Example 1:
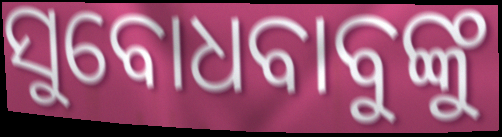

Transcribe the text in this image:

ସୁବୋଧବାବୁଙ୍କୁ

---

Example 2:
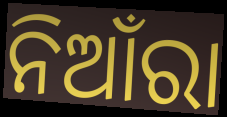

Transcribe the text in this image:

ନିଆଁରା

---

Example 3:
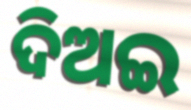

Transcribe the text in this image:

ଦିଅଇ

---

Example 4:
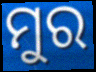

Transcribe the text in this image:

ମୁର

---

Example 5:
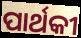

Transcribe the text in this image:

ପାର୍ଥକୀ